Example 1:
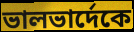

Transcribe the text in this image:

ভালভার্দেকে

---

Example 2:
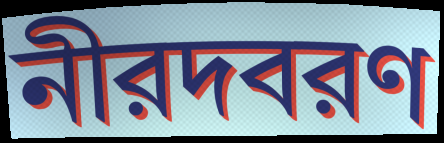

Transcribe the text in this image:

নীরদবরণ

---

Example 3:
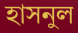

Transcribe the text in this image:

হাসনুল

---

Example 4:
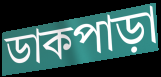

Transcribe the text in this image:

ডাকপাড়া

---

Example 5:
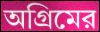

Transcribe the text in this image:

অগ্রিমের